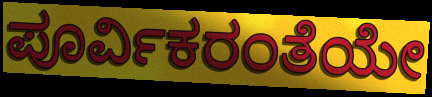
ಪೂರ್ವಿಕರಂತೆಯೇ